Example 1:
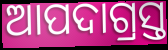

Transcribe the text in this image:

ଆପଦାଗ୍ରସ୍ତ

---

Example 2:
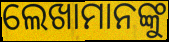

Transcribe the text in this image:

ଲେଖାମାନଙ୍କୁ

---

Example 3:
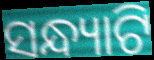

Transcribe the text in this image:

ସନ୍ଧ୍ୟାଟି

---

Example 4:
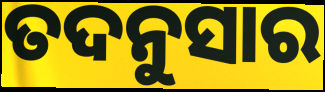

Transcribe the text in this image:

ତଦନୁସାର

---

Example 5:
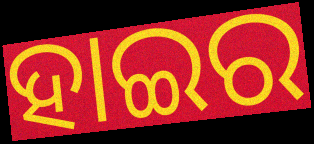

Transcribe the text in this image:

ହାଇର